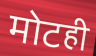
मोटही